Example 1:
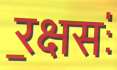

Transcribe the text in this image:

र॒क्षसः॑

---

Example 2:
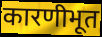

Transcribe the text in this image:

कारणीभूत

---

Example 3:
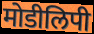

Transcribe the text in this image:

मोडीलिपी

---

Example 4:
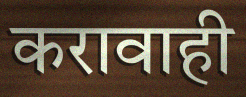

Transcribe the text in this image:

करावाही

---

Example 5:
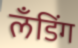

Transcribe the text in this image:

लँडिंग